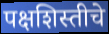
पक्षशिस्तीचे